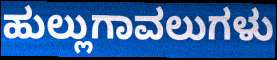
ಹುಲ್ಲುಗಾವಲುಗಳು